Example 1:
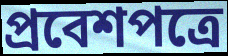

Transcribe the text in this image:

প্রবেশপত্রে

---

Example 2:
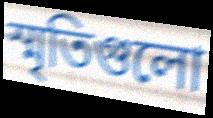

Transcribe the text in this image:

স্মৃতিগুলো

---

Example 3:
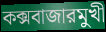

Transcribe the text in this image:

কক্সবাজারমুখী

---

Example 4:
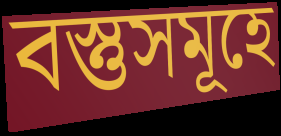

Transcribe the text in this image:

বস্তুসমূহে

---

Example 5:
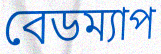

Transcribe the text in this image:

বেডম্যাপ